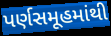
પર્ણસમૂહમાંથી